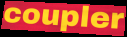
coupler